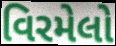
વિરમેલો